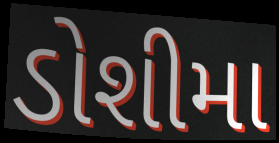
ડોશીમા